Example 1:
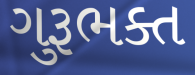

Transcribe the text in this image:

ગુરૂભક્ત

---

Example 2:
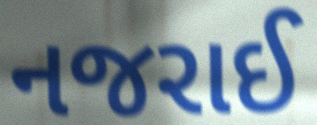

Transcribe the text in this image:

નજરાઈ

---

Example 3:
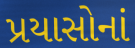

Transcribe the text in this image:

પ્રયાસોનાં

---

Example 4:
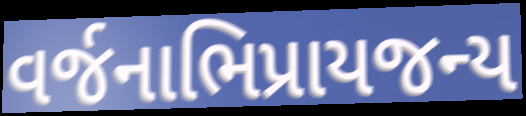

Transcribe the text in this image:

વર્જનાભિપ્રાયજન્ય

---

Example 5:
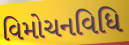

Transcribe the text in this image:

વિમોચનવિધિ